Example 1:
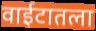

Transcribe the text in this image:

वाईटातला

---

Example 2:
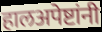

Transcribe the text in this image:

हालअपेष्टांनी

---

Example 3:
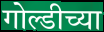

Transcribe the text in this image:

गोल्डीच्या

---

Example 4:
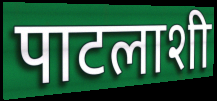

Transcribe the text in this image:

पाटलाशी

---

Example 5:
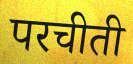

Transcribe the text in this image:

परचीती